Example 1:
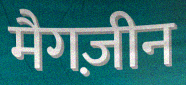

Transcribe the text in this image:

मैगज़ीन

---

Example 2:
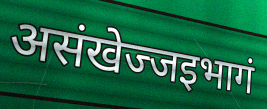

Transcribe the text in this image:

असंखेज्जइभागं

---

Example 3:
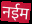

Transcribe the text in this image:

नईम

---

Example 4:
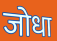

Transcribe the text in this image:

जोधा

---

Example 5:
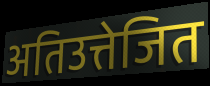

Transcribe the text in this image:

अतिउत्तेजित